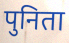
पुनिता